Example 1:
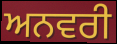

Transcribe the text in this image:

ਅਨਵਰੀ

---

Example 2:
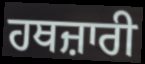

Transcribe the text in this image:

ਹਥਜ਼ਾਰੀ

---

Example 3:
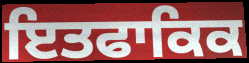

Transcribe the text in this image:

ਇਤਫਾਕਿਕ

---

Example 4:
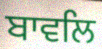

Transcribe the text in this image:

ਬਾਵਲਿ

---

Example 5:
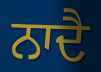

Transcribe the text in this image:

ਨਾਦੈ